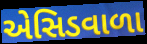
એસિડવાળા